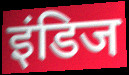
इंडिज